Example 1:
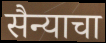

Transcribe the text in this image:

सैन्याचा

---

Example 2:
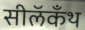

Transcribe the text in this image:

सीलॅकँथ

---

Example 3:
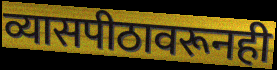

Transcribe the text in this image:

व्यासपीठावरूनही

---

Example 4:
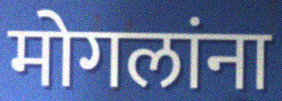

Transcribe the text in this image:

मोगलांना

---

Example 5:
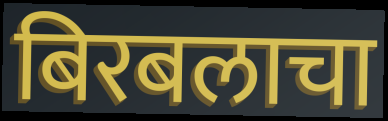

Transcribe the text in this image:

बिरबलाचा